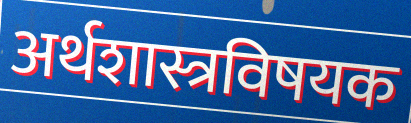
अर्थशास्त्रविषयक